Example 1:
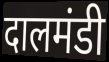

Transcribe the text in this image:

दालमंडी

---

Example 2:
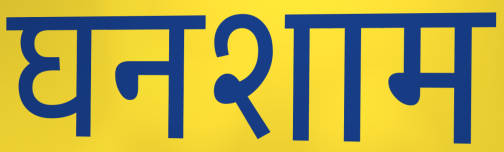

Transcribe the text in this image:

घनशाम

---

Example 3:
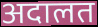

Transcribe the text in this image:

अदालत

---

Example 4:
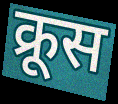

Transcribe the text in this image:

क्रूस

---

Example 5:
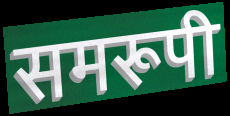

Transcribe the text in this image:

समरूपी